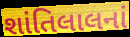
શાંતિલાલનાં